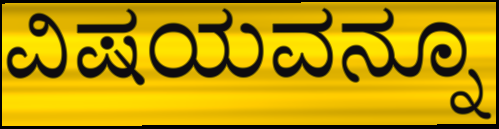
ವಿಷಯವನ್ನೂ